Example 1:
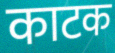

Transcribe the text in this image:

काटक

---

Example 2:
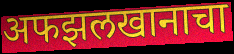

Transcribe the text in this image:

अफझलखानाचा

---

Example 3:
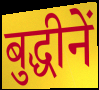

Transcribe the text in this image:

बुद्धीनें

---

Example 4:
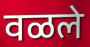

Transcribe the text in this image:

वळले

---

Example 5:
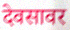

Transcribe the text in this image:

देवसावर